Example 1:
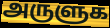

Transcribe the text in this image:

அருளுக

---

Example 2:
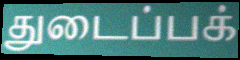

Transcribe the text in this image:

துடைப்பக்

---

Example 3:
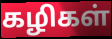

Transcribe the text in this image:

கழிகள்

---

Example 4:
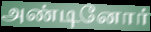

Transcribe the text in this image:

அண்டினோர்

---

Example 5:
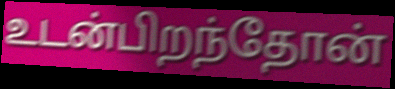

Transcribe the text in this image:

உடன்பிறந்தோன்